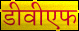
डीवीएफ